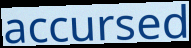
accursed